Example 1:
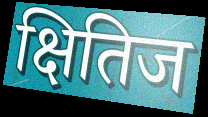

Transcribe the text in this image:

क्षितिज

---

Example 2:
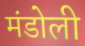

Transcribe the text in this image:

मंडोली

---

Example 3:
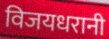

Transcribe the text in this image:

विजयधरानी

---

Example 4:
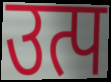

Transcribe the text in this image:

उत्प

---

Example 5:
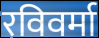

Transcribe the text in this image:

रविवर्मा